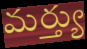
మర్త్యు